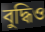
বুদ্ধিও